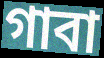
গাবা